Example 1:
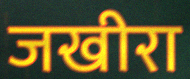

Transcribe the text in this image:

जखीरा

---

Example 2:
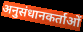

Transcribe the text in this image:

अनुसंधानकर्ताओं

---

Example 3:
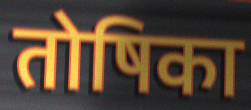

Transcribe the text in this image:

तोषिका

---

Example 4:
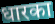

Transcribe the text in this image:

धारका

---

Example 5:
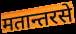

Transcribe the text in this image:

मतान्तरसे